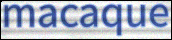
macaque